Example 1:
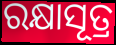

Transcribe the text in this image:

ରକ୍ଷାସୂତ୍ର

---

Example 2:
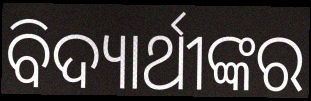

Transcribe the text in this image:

ବିଦ୍ୟାର୍ଥୀଙ୍କର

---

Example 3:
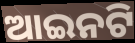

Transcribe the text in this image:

ଆଇନଟି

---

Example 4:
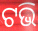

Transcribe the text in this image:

ଟଭି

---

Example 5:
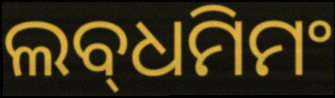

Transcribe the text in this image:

ଲବ୍‌ଧମିମଂ